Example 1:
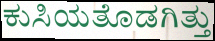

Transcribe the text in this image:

ಕುಸಿಯತೊಡಗಿತ್ತು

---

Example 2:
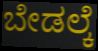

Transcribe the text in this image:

ಬೇಡಲ್ಕೆ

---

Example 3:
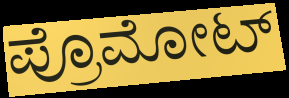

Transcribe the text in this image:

ಪ್ರೊಮೋಟ್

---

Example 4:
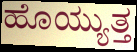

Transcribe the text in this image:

ಹೊಯ್ಯುತ್ತ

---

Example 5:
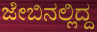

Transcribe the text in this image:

ಜೇಬಿನಲ್ಲಿದ್ದ